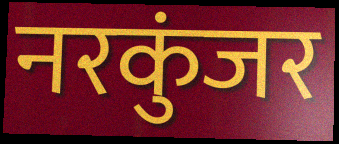
नरकुंजर